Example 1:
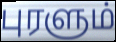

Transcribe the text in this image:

புரளும்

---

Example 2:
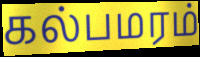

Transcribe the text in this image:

கல்பமரம்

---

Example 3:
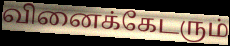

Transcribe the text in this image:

வினைக்கேடரும்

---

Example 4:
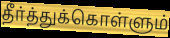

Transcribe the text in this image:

தீர்த்துக்கொள்ளும்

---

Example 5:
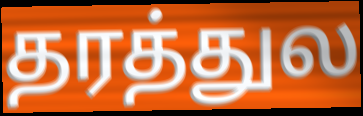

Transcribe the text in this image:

தரத்துல